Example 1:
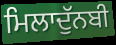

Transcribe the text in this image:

ਮਿਲਾਦੁੱਨਬੀ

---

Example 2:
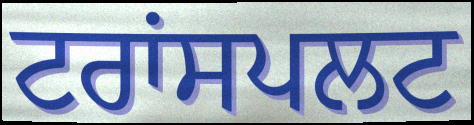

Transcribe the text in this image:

ਟਰਾਂਸਪਲਟ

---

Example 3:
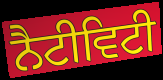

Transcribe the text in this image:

ਨੈਟੀਵਿਟੀ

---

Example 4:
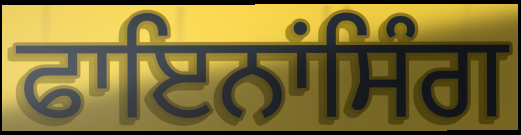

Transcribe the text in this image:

ਫਾਇਨਾਂਸਿੰਗ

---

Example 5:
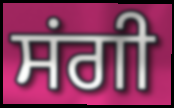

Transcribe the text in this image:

ਸਂਗੀ